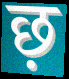
छ़